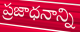
ప్రజాధనాన్ని